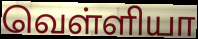
வெள்ளியா